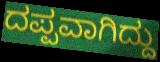
ದಪ್ಪವಾಗಿದ್ದು